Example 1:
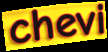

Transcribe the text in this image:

chevi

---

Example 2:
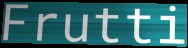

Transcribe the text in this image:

Frutti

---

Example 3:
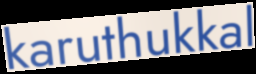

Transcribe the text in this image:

karuthukkal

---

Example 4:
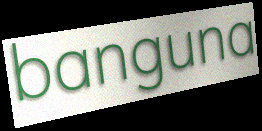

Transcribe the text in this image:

banguna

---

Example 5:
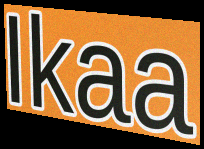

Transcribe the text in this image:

Ikaa